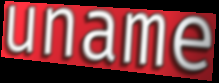
uname